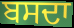
ਬਸਦਾ